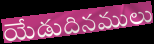
యేడుదినములు